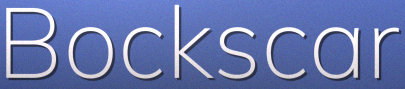
Bockscar